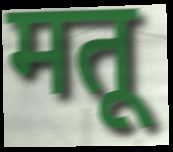
मतू